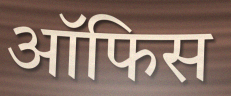
ऑफिस